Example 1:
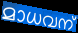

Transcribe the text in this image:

മാധവന്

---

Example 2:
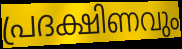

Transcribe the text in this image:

പ്രദക്ഷിണവും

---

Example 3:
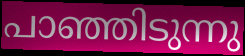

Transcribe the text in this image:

പാഞ്ഞിടുന്നു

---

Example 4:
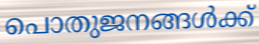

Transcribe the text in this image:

പൊതുജനങ്ങൾക്ക്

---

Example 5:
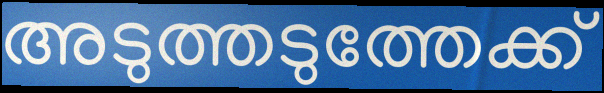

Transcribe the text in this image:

അടുത്തടുത്തേക്ക്